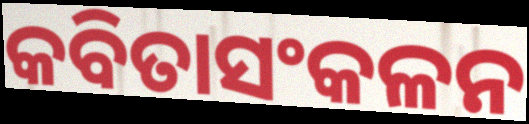
କବିତାସଂକଳନ